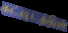
கட்டிடத்தின்